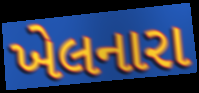
ખેલનારા